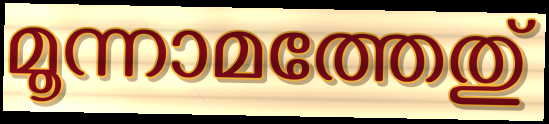
മൂന്നാമത്തേതു്